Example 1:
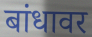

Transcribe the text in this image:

बांधावर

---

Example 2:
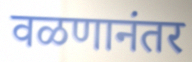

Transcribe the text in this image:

वळणानंतर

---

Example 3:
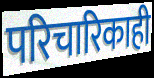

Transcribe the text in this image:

परिचारिकाही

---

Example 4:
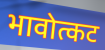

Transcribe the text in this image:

भावोत्कट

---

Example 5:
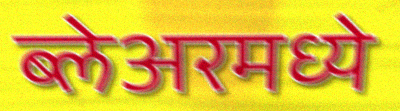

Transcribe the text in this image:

ब्लेअरमध्ये